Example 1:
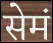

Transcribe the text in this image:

सेमं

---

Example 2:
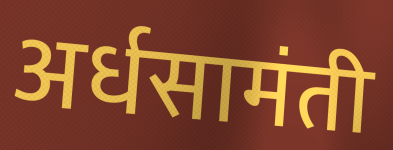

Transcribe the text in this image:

अर्धसामंती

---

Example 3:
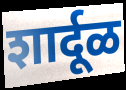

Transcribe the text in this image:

शार्दूळ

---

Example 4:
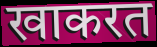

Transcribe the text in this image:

खाकरत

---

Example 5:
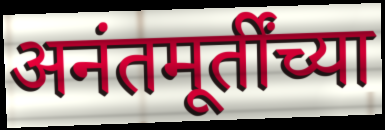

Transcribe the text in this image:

अनंतमूर्तींच्या